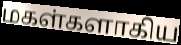
மகள்களாகிய